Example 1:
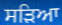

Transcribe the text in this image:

ਸੜਿਆ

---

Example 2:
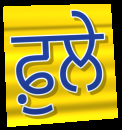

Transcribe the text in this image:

ਫ਼ੁਲੇ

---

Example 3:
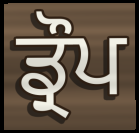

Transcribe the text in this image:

ਡ੍ਰੌਪ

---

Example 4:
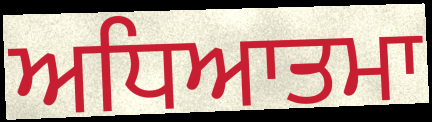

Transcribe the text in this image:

ਅਧਿਆਤਮਾ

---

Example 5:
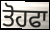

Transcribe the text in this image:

ਤੋਹਫਾ